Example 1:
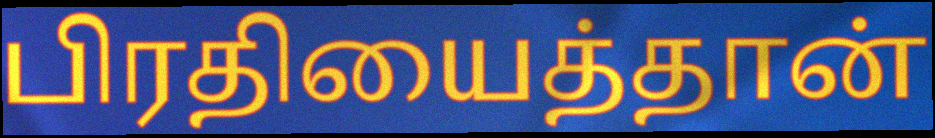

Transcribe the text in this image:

பிரதியைத்தான்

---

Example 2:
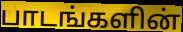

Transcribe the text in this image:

பாடங்களின்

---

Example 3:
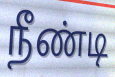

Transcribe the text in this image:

நீண்டி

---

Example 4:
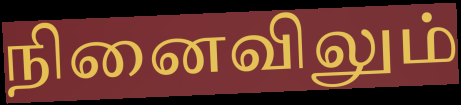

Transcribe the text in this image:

நினைவிலும்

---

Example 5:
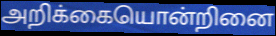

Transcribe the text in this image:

அறிக்கையொன்றினை